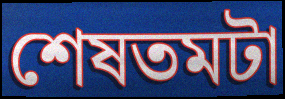
শেষতমটা